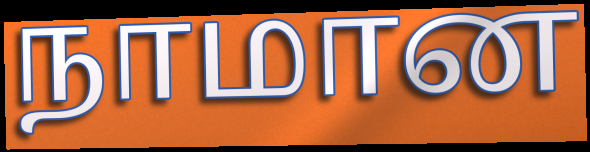
நாமான